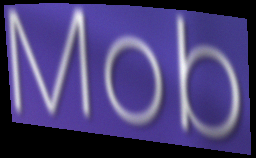
Mob